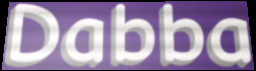
Dabba